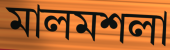
মালমশলা